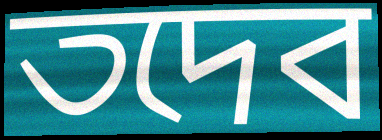
তদেব